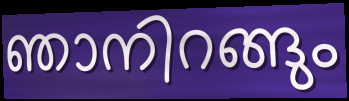
ഞാനിറങ്ങും